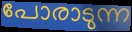
പോരാടുന്ന